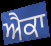
ਐਕਾ